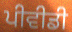
ਪੀਵੀਡੀ